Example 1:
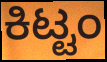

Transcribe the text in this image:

ಕಿಟ್ಟಂ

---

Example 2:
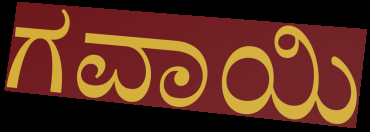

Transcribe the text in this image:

ಗವಾಯಿ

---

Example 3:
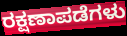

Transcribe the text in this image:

ರಕ್ಷಣಾಪಡೆಗಳು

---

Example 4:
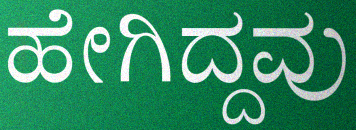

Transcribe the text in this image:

ಹೇಗಿದ್ದವು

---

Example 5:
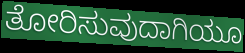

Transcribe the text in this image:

ತೋರಿಸುವುದಾಗಿಯೂ